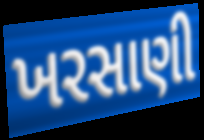
ખરસાણી